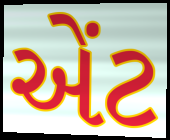
એંટ